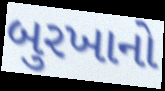
બુરખાનો